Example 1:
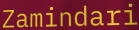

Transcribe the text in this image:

Zamindari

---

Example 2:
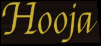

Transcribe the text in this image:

Hooja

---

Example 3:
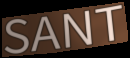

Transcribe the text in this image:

SANT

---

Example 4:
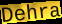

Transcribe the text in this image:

Dehra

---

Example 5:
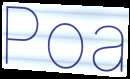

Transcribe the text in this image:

Poa